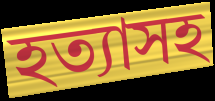
হত্যাসহ